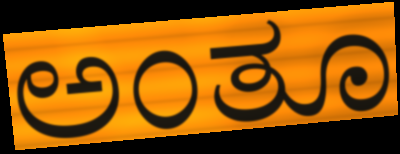
ಅಂತೂ